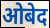
ओबेद